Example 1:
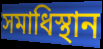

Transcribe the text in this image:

সমাধিস্থান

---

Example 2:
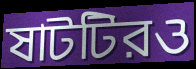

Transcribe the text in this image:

ষাটটিরও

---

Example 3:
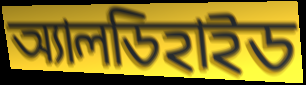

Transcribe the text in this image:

অ্যালডিহাইড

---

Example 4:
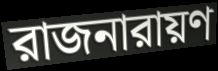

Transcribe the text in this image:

রাজনারায়ণ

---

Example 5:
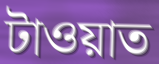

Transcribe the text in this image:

টাওয়াত